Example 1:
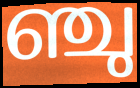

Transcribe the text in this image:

ഞ്ചു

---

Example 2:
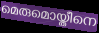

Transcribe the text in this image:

മെരുമൊയ്തീനെ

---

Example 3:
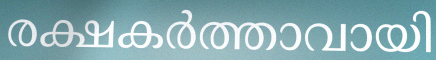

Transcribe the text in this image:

രക്ഷകർത്താവായി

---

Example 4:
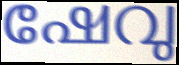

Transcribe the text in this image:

ഷേവു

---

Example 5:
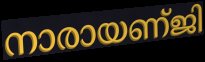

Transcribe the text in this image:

നാരായണ്ജി